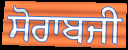
ਸੋਰਾਬਜੀ